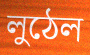
লুঠেল